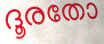
ദൂരതോ